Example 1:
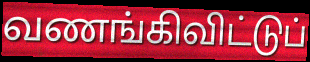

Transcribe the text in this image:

வணங்கிவிட்டுப்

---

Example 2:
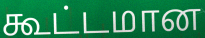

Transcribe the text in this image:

கூட்டமான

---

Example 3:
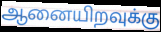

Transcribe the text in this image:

ஆனையிறவுக்கு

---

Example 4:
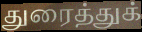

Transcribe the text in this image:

துரைத்துக்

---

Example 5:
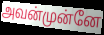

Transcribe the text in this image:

அவன்முன்னே